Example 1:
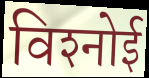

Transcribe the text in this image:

विश्नोई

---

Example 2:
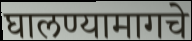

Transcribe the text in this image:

घालण्यामागचे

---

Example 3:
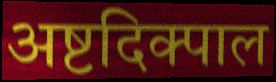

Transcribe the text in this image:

अष्टदिक्पाल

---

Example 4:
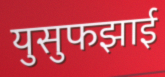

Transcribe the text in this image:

युसुफझाई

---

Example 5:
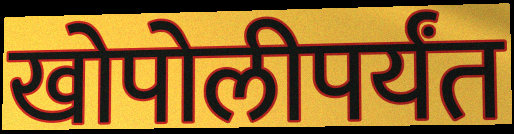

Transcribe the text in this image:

खोपोलीपर्यंत